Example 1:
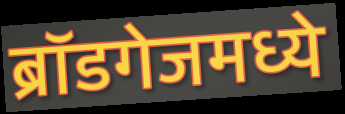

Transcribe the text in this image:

ब्रॉडगेजमध्ये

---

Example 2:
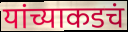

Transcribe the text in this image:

यांच्याकडचं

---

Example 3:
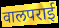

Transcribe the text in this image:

वालपराई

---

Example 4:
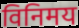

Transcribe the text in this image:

विनिमय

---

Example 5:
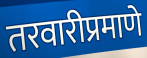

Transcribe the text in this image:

तरवारीप्रमाणे